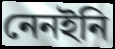
নেনইনি